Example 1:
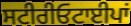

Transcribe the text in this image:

ਸਟੀਰੀਓਟਾਈਪਾਂ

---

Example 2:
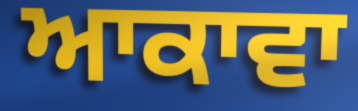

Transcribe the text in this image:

ਆਕਾਵਾ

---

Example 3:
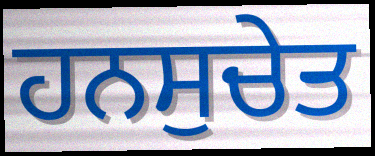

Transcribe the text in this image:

ਹਨਸੁਚੇਤ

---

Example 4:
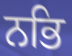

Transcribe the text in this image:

ਨਭਿ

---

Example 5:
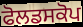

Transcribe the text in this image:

ਫੋਲਡਸਕੋਪ